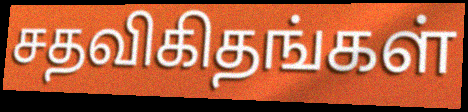
சதவிகிதங்கள்